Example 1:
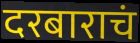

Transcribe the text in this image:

दरबाराचं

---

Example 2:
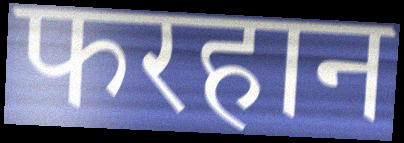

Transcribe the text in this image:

फरहान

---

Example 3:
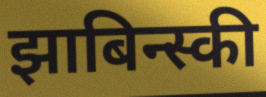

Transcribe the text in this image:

झाबिन्स्की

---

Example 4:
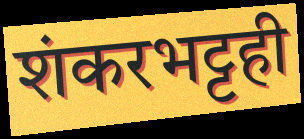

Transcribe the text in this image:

शंकरभट्टही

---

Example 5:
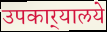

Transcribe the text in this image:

उपकार्यालये